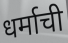
धर्माची